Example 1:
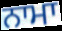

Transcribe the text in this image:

ਨਾਮਾ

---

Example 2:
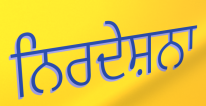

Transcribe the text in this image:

ਨਿਰਦੇਸ਼ਨਾ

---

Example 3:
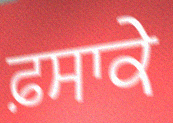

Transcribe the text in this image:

ਫ਼ਸਾਕੇ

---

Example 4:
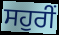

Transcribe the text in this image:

ਸਹੁਰੀਂ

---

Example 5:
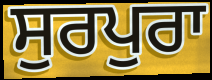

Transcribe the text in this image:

ਸੁਰਪੁਰਾ